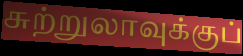
சுற்றுலாவுக்குப்